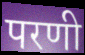
परणी